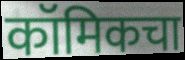
कॉमिकचा